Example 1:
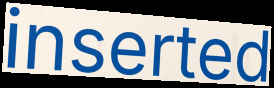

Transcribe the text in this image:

inserted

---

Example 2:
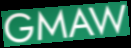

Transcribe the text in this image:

GMAW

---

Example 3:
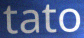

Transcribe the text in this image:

tato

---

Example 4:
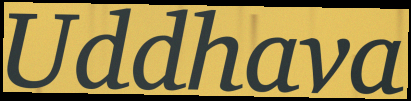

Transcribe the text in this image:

Uddhava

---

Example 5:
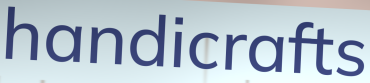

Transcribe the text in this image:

handicrafts